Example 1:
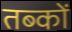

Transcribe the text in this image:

तब्कों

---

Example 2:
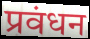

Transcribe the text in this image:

प्रवंधन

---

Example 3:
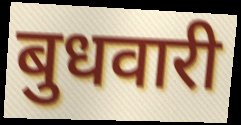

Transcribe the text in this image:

बुधवारी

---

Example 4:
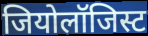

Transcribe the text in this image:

जियोलॉजिस्ट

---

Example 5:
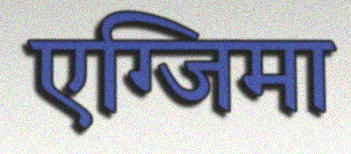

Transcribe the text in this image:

एग्जिमा